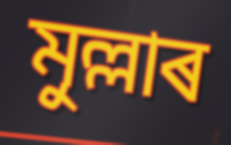
মুল্লাৰ